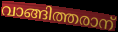
വാങ്ങിത്തരാന്